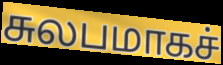
சுலபமாகச்